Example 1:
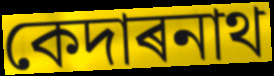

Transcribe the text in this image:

কেদাৰনাথ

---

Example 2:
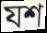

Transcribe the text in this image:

যশ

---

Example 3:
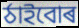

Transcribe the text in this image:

ঠাইবোৰ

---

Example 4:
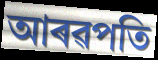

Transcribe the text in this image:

আৰৱপতি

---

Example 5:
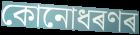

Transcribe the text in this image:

কোনোধৰণৰ